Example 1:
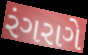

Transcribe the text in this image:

રંગરાગે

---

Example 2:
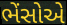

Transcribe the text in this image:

ભેંસોએ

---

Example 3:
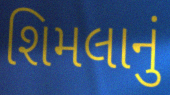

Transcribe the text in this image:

શિમલાનું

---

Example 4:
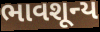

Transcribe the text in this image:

ભાવશૂન્ય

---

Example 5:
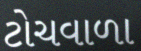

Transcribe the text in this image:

ટોચવાળા